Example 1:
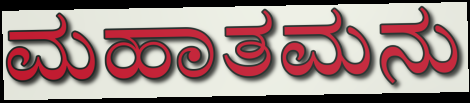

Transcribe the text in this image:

ಮಹಾತಮನು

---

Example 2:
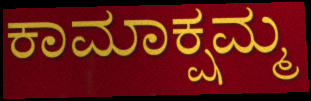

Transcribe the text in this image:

ಕಾಮಾಕ್ಷಮ್ಮ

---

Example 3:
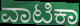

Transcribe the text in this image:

ವಾಟಿಕಾ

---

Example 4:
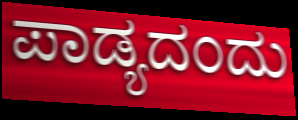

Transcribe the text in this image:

ಪಾಡ್ಯದಂದು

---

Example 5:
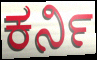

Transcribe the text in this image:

ಕರ್ನಿ